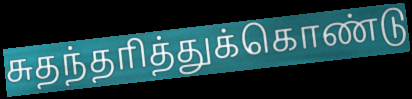
சுதந்தரித்துக்கொண்டு